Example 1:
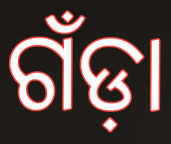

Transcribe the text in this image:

ଗଁଡ଼ା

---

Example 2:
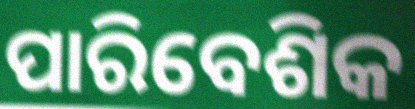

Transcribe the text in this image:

ପାରିବେଶିକ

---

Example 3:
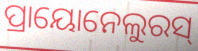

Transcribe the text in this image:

ପ୍ରାୟୋନେଲୁରସ୍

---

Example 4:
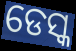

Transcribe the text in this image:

ଡେସ୍କ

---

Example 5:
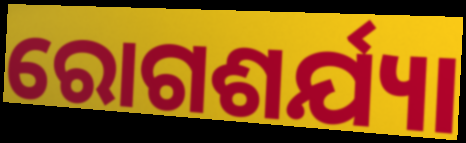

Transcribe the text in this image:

ରୋଗଶର୍ଯ୍ୟା